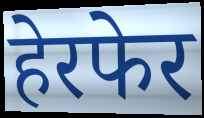
हेरफेर